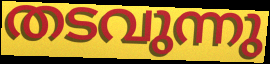
തടവുന്നു